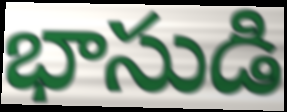
భాసుడి